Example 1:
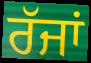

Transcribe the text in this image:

ਰੱਜਾਂ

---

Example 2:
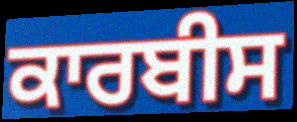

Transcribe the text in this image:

ਕਾਰਬੀਸ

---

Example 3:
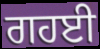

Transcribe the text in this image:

ਗਹਈ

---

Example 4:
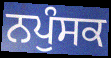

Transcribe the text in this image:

ਨਪੁੰਸਕ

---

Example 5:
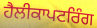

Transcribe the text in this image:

ਹੈਲੀਕਾਪਟਰਿੰਗ